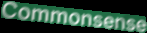
Commonsense